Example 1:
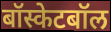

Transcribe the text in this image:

बॉस्केटबॉल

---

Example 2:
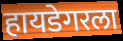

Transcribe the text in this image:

हायडेगरला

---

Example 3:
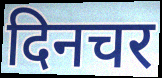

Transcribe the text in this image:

दिनचर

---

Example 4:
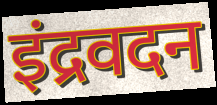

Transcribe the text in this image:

इंद्रवदन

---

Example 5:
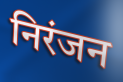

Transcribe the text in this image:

निरंजन